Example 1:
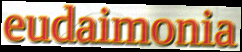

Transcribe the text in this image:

eudaimonia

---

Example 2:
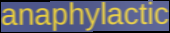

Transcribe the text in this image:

anaphylactic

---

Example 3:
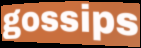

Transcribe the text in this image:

gossips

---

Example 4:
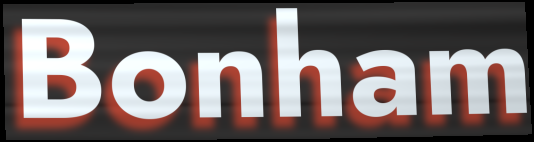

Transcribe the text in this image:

Bonham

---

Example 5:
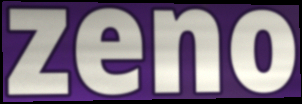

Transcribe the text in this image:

zeno